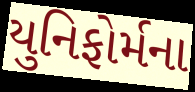
યુનિફોર્મના